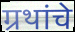
ग्रथांचे